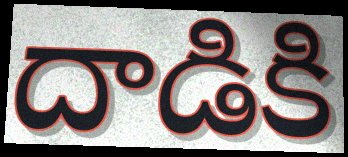
దాడికి